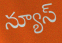
న్యూస్